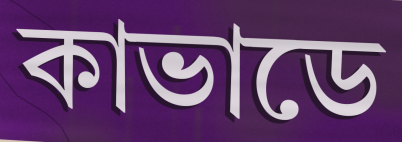
কাভাডে